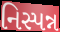
નિસ્પન્ન